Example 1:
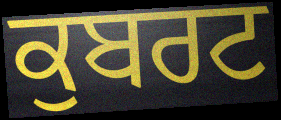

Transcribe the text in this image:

ਕੁਬਰਟ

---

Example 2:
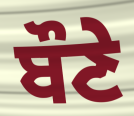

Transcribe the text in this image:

ਬੌਣੇ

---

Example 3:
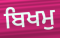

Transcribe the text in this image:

ਬਿਖਮੁ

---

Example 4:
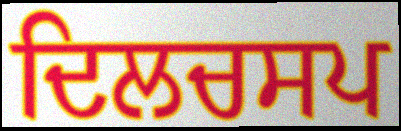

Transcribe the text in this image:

ਦਿਲਚਸਪ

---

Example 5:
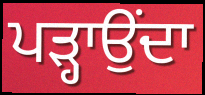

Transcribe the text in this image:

ਪੜ੍ਹਾਉਂਦਾ